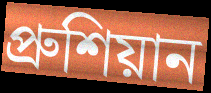
প্রুশিয়ান